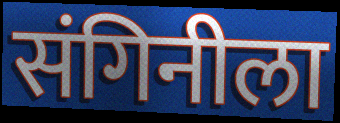
संगिनीला